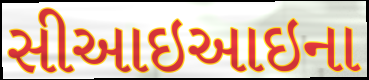
સીઆઇઆઇના